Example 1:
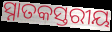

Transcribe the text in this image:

ସ୍ନାତକସ୍ତରୀୟ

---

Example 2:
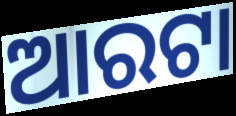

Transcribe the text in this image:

ଆରଟା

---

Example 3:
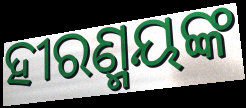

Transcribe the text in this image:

ହୀରଣ୍ମୟଙ୍କ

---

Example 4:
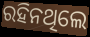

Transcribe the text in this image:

ରହିନଥିଲେ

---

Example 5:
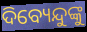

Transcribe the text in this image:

ଦିବ୍ୟେନ୍ଦୁଙ୍କୁ